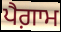
ਪੈਗ਼ਾਮ